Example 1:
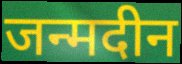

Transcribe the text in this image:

जन्मदीन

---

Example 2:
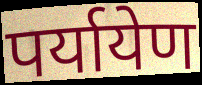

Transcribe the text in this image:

पर्यायेण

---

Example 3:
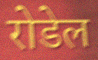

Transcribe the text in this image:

रोडेल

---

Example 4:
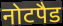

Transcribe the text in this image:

नोटपैड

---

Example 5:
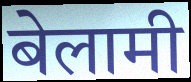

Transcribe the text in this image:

बेलामी